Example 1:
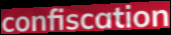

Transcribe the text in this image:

confiscation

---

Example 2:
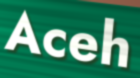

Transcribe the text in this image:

Aceh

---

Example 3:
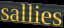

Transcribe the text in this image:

sallies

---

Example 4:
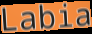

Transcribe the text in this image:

Labia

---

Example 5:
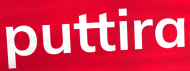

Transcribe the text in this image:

puttira